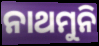
ନାଥମୁନି